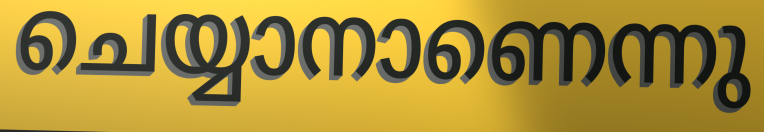
ചെയ്യാനാണെന്നു